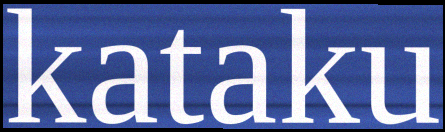
kataku